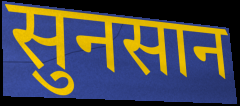
सुनसान